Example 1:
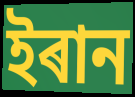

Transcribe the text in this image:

ইৰান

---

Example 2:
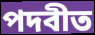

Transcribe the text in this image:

পদবীত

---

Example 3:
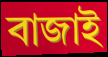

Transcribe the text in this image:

বাজাই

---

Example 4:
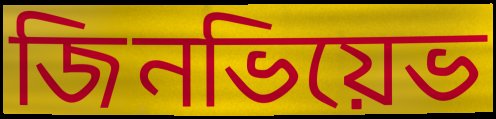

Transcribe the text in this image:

জিনভিয়েভ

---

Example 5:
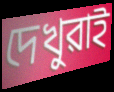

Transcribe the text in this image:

দেখুৱাই